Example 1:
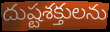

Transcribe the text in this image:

దుష్టశక్తులను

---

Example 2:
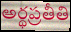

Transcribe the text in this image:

అర్థప్రతీతి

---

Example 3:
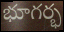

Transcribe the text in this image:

భూగర్భ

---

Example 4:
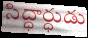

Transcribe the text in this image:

సిద్ధార్ధుడు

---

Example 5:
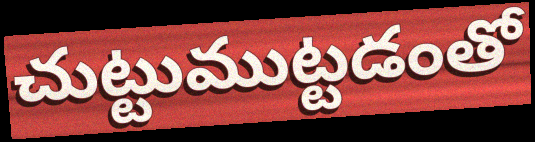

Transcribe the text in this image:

చుట్టుముట్టడంతో